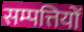
सम्पत्तियों